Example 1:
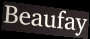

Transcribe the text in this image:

Beaufay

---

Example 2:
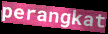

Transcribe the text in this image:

perangkat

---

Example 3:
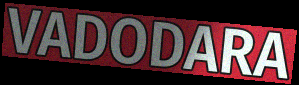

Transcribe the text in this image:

VADODARA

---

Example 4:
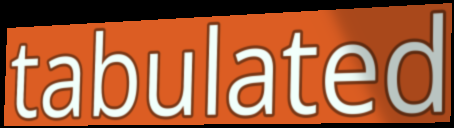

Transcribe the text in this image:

tabulated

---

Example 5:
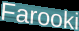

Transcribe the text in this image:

Farooki